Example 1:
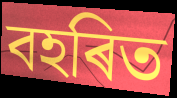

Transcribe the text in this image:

বহৰিত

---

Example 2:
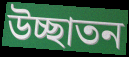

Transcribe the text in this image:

উচ্ছাতন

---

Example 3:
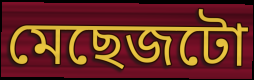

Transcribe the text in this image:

মেছেজটো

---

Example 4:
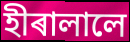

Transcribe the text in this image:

হীৰালালে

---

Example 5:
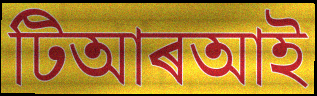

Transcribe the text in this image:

টিআৰআই